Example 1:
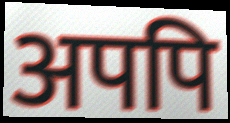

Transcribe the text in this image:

अपपि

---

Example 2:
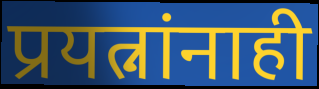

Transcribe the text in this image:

प्रयत्नांनाही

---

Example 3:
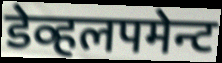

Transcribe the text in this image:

डेव्हलपमेन्ट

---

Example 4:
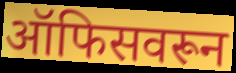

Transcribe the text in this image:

ऑफिसवरून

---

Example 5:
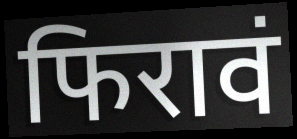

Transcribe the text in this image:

फिरावं